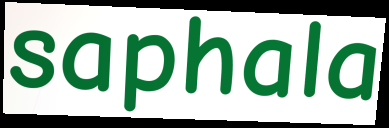
saphala